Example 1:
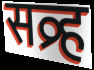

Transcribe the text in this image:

सव्र्ह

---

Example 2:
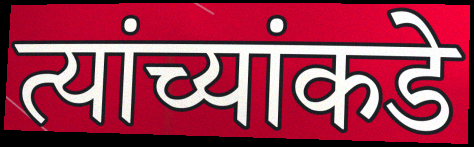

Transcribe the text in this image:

त्यांच्यांकडे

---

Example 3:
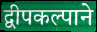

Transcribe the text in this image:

द्वीपकल्पाने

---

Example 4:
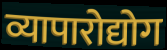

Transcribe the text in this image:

व्यापारोद्योग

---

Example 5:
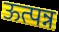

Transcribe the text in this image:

ऊत्पन्न